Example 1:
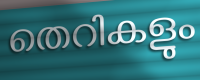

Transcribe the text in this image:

തെറികളും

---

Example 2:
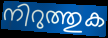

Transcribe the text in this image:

നിറുത്തുക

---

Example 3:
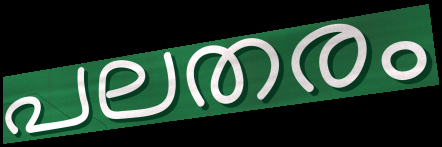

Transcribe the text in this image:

പലതരം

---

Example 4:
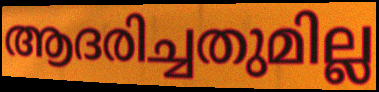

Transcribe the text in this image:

ആദരിച്ചതുമില്ല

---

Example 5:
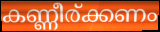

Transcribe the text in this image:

കണ്ണീര്ക്കണം